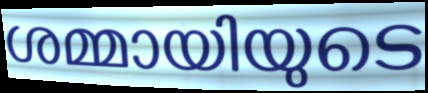
ശമ്മായിയുടെ